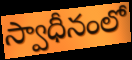
స్వాధీనంలో